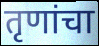
तृणांचा